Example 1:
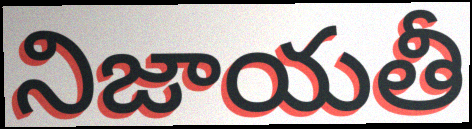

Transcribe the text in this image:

నిజాయతీ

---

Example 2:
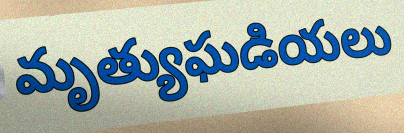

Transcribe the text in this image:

మృత్యుఘడియలు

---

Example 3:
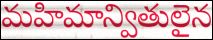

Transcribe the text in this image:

మహిమాన్వితులైన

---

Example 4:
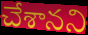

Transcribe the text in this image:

చేశానని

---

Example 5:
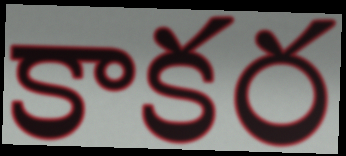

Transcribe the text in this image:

కాకర